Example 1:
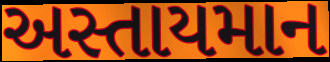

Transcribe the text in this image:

અસ્તાયમાન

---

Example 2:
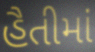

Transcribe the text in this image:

હૈતીમાં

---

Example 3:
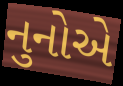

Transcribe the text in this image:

નુનોએ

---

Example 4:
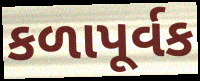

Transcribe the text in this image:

કળાપૂર્વક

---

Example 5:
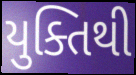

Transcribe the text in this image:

યુક્તિથી